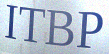
ITBP